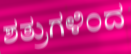
ಶತ್ರುಗಳಿಂದ